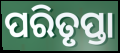
ପରିତୃପ୍ତା